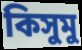
কিসুমু